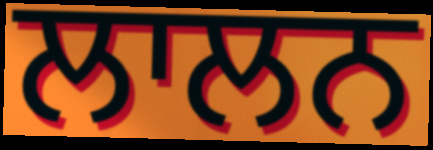
ਲਾਲਨ